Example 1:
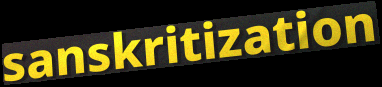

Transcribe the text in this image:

sanskritization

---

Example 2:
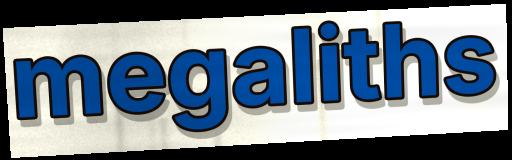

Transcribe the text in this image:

megaliths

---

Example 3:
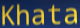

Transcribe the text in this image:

Khata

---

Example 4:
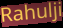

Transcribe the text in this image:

Rahulji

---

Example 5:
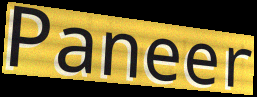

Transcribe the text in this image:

Paneer